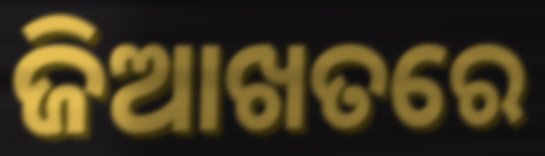
ଜିଆଖତରେ